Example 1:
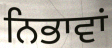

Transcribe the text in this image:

ਨਿਭਾਵਾਂ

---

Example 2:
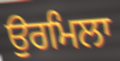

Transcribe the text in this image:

ਉਰਮਿਲਾ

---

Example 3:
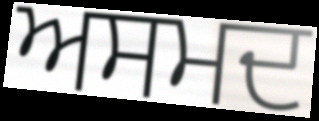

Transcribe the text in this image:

ਅਸਮਦ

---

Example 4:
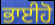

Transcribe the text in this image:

ਭਾਈਹੋ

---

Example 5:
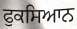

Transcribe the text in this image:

ਫੁਕਸਿਆਨ